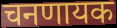
चनणायक